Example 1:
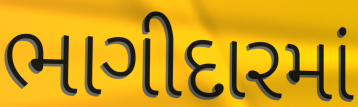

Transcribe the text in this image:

ભાગીદારમાં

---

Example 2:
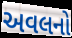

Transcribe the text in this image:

અવલનો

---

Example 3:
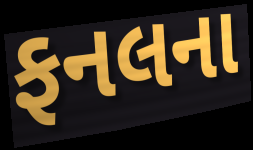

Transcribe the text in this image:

ફનલના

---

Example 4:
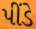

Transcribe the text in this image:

પીંડે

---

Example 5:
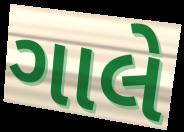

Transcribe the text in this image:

ગાલે